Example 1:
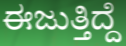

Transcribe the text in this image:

ಈಜುತ್ತಿದ್ದೆ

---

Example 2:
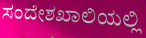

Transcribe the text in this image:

ಸಂದೇಶಖಾಲಿಯಲ್ಲಿ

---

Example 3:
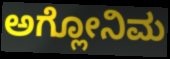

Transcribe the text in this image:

ಅಗ್ಲೋನಿಮ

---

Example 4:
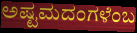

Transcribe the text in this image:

ಅಷ್ಟಮದಂಗಳೆಂಬ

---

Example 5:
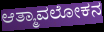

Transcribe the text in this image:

ಆತ್ಮಾವಲೋಕನ